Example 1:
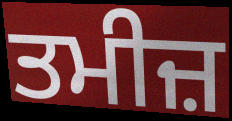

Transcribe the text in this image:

ਤਮੀਜ਼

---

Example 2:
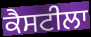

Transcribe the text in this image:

ਕੈਸਟੀਲਾ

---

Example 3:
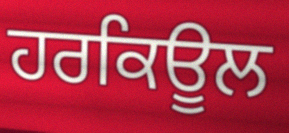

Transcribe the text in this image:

ਹਰਕਿਊਲ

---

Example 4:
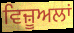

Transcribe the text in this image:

ਵਿਜ਼ੂਅਲਾਂ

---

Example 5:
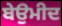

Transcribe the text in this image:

ਬੇਉਮੀਦ